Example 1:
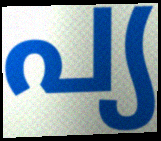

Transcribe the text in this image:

പ്യ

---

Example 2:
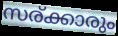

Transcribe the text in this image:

സര്ക്കാരും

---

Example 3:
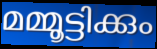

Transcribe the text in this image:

മമ്മൂട്ടിക്കും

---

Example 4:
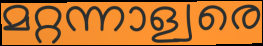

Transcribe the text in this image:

മറ്റന്നാള്വരെ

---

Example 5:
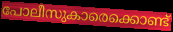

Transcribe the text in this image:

പോലീസുകാരെക്കൊണ്ട്